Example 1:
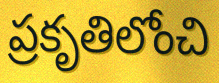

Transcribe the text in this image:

ప్రకృతిలోంచి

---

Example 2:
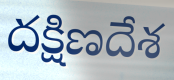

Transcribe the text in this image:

దక్షిణదేశ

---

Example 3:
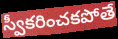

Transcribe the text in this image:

స్వీకరించకపోతే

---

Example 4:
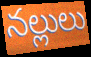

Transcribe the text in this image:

నల్లులు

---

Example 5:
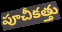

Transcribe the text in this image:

పూచీకత్తు